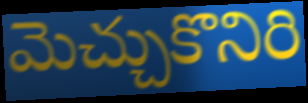
మెచ్చుకొనిరి